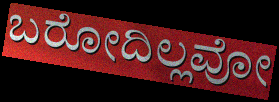
ಬರೋದಿಲ್ಲವೋ